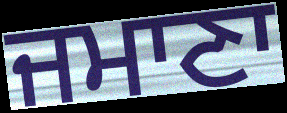
ਜਮਾਣਾ